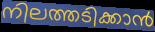
നിലത്തടിക്കാൻ